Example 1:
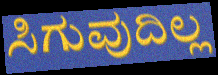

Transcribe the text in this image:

ಸಿಗುವುದಿಲ್ಲ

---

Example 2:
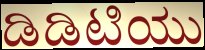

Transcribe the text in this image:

ಡಿಡಿಟಿಯು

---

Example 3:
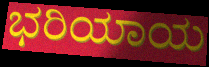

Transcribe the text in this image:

ಭರಿಯಾಯ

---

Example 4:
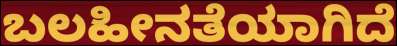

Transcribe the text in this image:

ಬಲಹೀನತೆಯಾಗಿದೆ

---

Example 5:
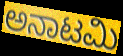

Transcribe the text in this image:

ಅನಾಟಮಿ